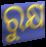
ରୁକ୍ଷ